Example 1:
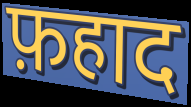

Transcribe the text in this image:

फ़हाद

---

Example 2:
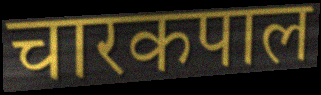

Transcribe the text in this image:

चारकपाल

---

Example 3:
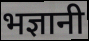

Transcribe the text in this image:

भज्ञानी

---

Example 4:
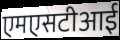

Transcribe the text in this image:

एमएसटीआई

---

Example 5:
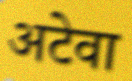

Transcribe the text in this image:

अटेवा